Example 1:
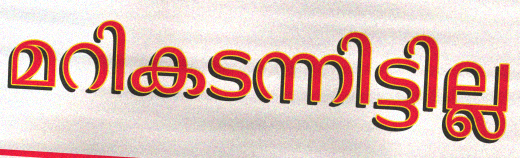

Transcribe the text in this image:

മറികടന്നിട്ടില്ല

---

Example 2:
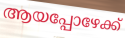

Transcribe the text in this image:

ആയപ്പോഴേക്ക്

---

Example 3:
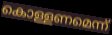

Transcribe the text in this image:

കൊള്ളണമെന്ന്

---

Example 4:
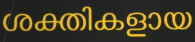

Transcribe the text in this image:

ശക്തികളായ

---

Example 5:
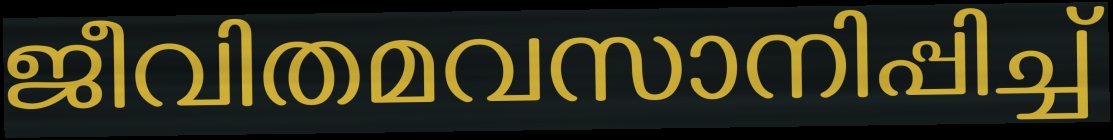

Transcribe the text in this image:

ജീവിതമവസാനിപ്പിച്ച്